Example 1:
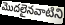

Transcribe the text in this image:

మొదలైనవాటిని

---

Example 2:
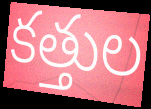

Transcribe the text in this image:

కత్తుల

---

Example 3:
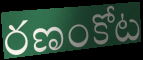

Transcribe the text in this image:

రణంకోట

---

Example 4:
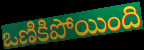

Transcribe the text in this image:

ఒణికిపోయింది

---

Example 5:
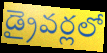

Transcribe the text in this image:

డ్రైవర్లలో